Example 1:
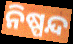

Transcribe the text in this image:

ନିଷ୍ପନ୍ଦ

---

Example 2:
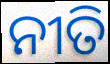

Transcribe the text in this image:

ନୀତି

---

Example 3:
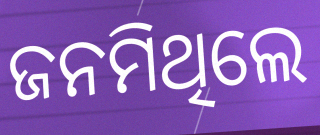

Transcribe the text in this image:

ଜନମିଥିଲେ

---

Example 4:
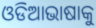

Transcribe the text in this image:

ଓଡିଆଭାଷାକୁ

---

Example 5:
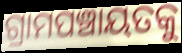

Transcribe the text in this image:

ଗ୍ରାମପଞ୍ଚାୟତକୁ